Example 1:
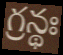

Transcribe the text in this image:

గ్రన్థః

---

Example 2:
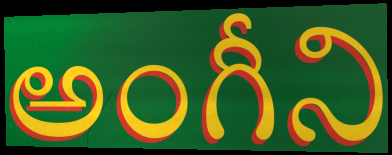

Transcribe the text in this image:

అంగీని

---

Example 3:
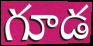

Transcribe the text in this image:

గూడ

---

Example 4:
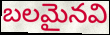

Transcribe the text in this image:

బలమైనవి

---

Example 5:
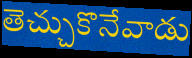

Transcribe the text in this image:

తెచ్చుకొనేవాడు